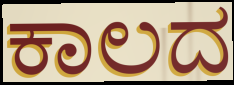
ಕಾಲದ